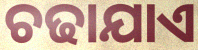
ଚଢାଯାଏ